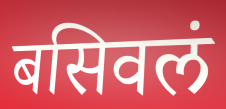
बसिवलं